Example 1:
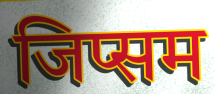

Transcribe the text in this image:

जिप्सम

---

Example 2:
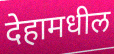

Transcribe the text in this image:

देहामधील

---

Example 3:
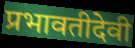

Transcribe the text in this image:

प्रभावतीदेवी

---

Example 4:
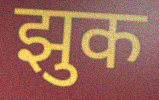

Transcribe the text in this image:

झुक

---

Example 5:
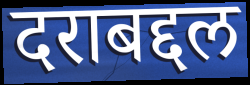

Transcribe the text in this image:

दराबद्दल